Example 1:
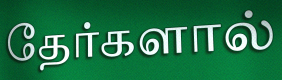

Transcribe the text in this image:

தேர்களால்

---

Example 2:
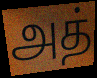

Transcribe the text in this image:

அத்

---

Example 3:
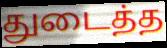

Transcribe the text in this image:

துடைத்த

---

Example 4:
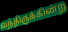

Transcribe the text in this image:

வந்திருக்கின்ற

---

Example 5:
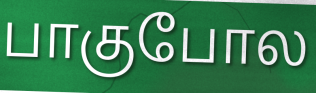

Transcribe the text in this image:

பாகுபோல